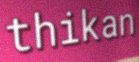
thikan